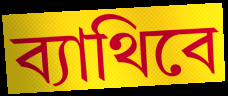
ব্যাথিবে